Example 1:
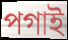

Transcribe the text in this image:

পগাই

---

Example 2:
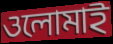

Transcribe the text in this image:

ওলোমাই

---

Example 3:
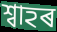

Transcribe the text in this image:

শ্বাহৰ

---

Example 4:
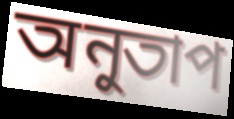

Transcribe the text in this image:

অনুতাপ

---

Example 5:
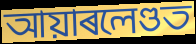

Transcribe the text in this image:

আয়াৰলেণ্ডত